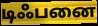
டிஃபனை